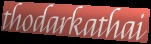
thodarkathai